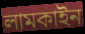
লামকাইন